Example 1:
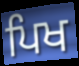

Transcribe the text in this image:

ਪਿਖ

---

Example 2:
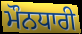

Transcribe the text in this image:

ਮੌਨਧਾਰੀ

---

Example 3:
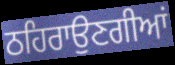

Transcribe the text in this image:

ਠਹਿਰਾਉਣਗੀਆਂ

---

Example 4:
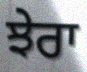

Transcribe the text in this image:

ਝੇਰਾ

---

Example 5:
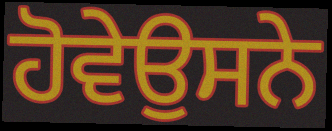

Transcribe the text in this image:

ਹੋਵੇਉਸਨੇ